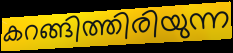
കറങ്ങിത്തിരിയുന്ന